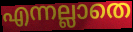
എന്നല്ലാതെ